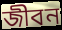
জীবন